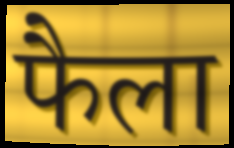
फैला